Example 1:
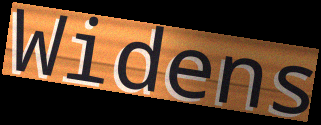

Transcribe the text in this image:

Widens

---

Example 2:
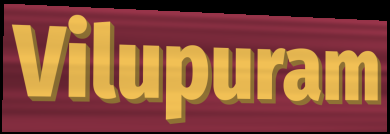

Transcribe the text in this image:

Vilupuram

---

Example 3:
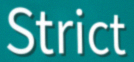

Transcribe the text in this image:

Strict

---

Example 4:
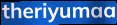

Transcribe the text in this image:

theriyumaa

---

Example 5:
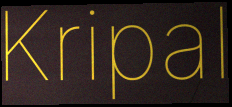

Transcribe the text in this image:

Kripal